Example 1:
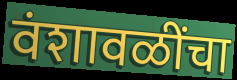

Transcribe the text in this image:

वंशावळींचा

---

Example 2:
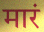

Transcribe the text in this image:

मारं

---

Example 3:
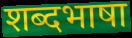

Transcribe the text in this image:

शब्दभाषा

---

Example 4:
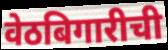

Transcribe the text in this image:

वेठबिगारीची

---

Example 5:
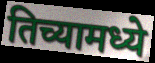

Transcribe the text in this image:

तिच्यामध्ये